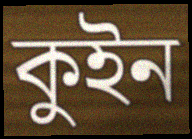
কুইন